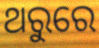
ଥରୁରେ